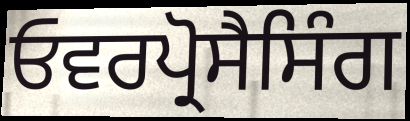
ਓਵਰਪ੍ਰੋਸੈਸਿੰਗ